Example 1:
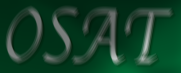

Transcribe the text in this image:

OSAT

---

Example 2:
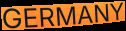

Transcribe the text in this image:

GERMANY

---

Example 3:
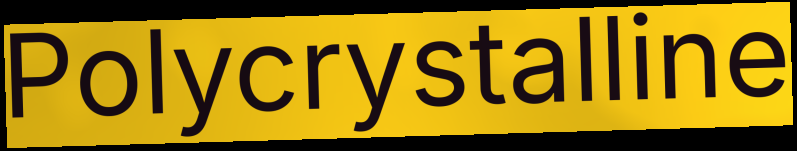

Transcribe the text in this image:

Polycrystalline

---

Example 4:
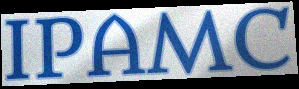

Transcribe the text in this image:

IPAMC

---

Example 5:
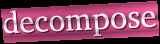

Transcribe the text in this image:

decompose